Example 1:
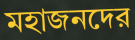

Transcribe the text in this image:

মহাজনদের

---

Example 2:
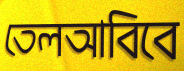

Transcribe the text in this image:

তেলআবিবে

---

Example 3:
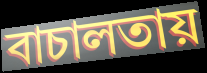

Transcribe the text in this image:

বাচালতায়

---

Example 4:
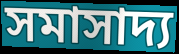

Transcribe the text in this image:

সমাসাদ্য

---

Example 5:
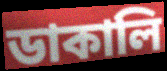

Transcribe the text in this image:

ডাকালি